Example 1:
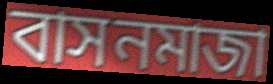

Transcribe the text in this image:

বাসনমাজা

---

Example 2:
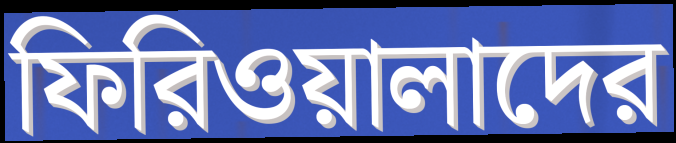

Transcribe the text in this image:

ফিরিওয়ালাদের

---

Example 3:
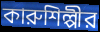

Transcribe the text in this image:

কারুশিল্পীর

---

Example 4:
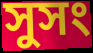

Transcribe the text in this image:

সুসং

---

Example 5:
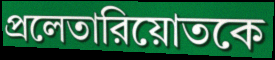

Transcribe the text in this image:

প্রলেতারিয়োতকে